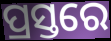
ପ୍ରସ୍ତରେ